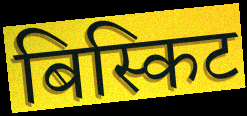
बिस्किट